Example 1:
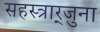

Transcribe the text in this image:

सहस्त्रार्जुना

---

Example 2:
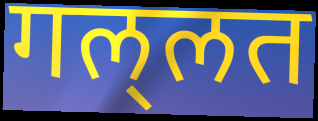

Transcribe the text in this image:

गल्लत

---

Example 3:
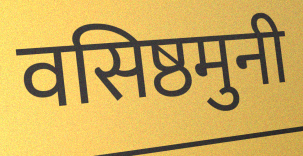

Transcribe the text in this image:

वसिष्ठमुनी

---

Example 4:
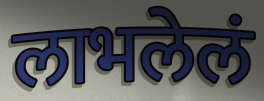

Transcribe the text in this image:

लाभलेलं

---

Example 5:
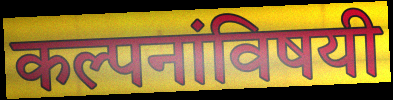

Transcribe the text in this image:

कल्पनांविषयी